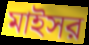
মাইসর